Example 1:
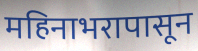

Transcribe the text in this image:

महिनाभरापासून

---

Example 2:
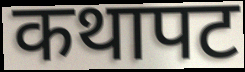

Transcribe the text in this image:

कथापट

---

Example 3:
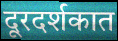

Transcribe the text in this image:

दूरदर्शकात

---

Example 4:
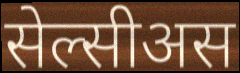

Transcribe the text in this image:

सेल्सीअस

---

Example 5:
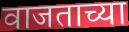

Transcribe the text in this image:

वाजताच्या